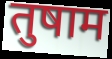
तुषाम